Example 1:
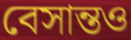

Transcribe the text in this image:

বেসান্তও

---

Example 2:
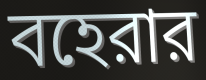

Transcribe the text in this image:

বহেরার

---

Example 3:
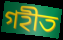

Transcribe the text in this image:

গহীত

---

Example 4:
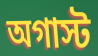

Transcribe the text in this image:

অগাস্ট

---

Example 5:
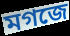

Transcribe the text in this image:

মগজে